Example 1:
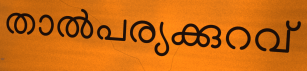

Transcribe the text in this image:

താൽപര്യക്കുറവ്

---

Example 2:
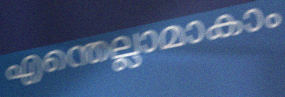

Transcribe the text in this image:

എന്തെല്ലാമാകാം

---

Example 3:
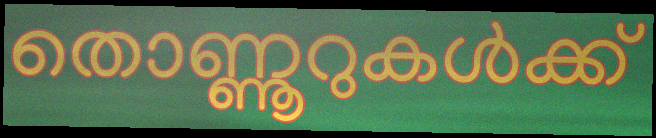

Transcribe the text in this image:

തൊണ്ണൂറുകൾക്ക്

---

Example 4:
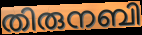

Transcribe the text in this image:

തിരുനബി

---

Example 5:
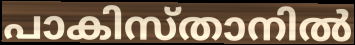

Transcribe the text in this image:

പാകിസ്താനിൽ